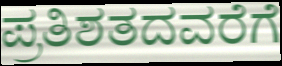
ಪ್ರತಿಶತದವರೆಗೆ